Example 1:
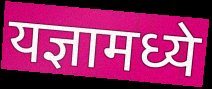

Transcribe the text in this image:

यज्ञामध्ये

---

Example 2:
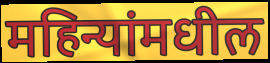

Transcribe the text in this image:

महिन्यांमधील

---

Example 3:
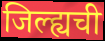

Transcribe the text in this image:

जिल्ह्यची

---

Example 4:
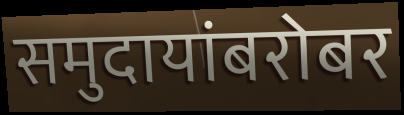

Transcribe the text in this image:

समुदायांबरोबर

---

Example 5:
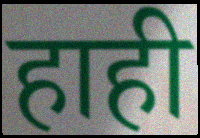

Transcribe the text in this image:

हाही